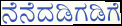
ನೆನೆದಡಿಗಡಿಗೆ